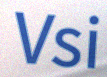
Vsi